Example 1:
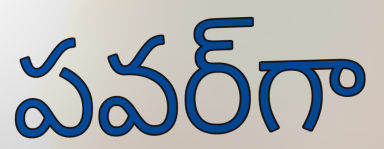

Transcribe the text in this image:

పవర్‌గా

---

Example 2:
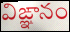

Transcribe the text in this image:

విఙ్ఞానం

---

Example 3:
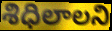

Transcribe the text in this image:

శిధిలాలని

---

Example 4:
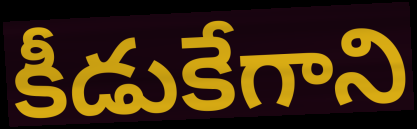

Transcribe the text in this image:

కీడుకేగాని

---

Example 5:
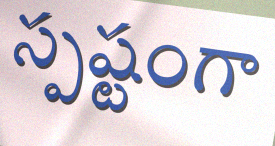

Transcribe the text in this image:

స్పష్టంగా